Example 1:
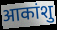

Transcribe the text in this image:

आकांशु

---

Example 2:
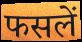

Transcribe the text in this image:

फसलें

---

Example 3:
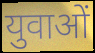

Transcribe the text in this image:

युवाओं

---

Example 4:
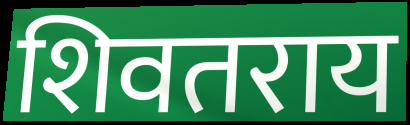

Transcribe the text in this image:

शिवतराय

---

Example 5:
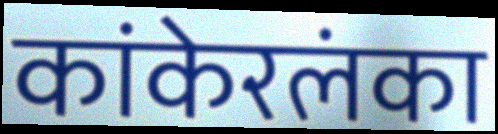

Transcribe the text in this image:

कांकेरलंका